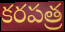
కరపత్ర